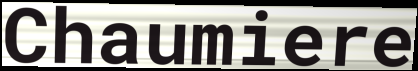
Chaumiere